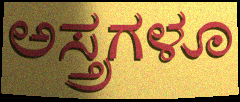
ಅಸ್ತ್ರಗಳೂ